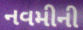
નવમીની